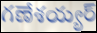
గణేశయ్యర్